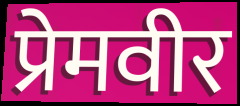
प्रेमवीर